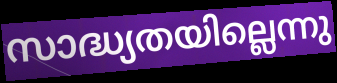
സാദ്ധ്യതയില്ലെന്നു